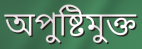
অপুষ্টিমুক্ত